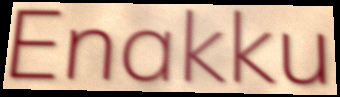
Enakku